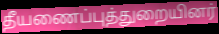
தீயணைப்புத்துறையினர்